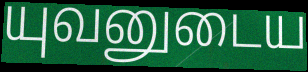
யுவனுடைய